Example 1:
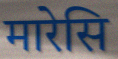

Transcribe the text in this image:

मारेसि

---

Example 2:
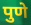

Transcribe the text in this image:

पुणे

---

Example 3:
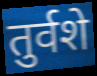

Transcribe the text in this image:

तुर्वशे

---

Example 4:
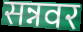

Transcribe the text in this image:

सन्नवर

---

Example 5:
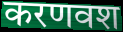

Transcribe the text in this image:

करणवश